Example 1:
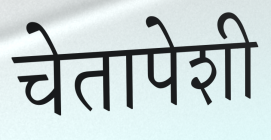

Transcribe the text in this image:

चेतापेशी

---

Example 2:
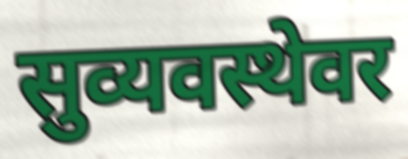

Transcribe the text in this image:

सुव्यवस्थेवर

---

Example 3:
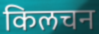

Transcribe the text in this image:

किलचन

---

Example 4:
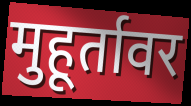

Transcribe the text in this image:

मुहूर्तावर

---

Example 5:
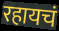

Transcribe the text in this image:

रहायचं